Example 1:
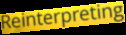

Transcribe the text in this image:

Reinterpreting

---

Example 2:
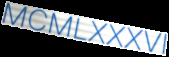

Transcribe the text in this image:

MCMLXXXVI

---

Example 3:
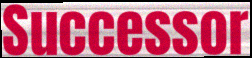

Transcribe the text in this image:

Successor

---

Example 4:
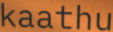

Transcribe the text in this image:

kaathu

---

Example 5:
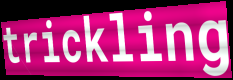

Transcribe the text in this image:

trickling